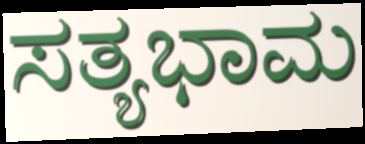
ಸತ್ಯಭಾಮ